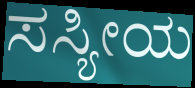
ಸಸ್ಯೀಯ